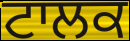
ਟਾਲਕ